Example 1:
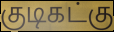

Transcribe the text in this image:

குடிகட்கு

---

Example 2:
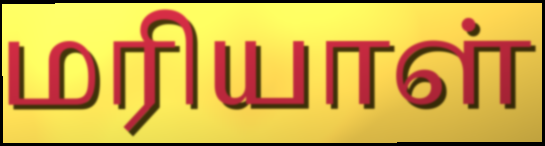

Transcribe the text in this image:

மரியாள்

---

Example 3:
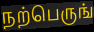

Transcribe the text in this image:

நற்பெருங்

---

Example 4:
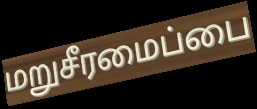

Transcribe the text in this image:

மறுசீரமைப்பை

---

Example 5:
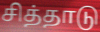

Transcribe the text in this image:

சித்தாடு